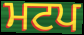
ਮਟਪ